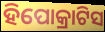
ହିପୋକ୍ରାଟିସ